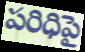
పరిధిపై